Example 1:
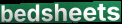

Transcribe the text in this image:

bedsheets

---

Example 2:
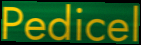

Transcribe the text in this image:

Pedicel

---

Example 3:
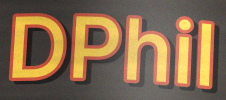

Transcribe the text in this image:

DPhil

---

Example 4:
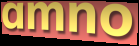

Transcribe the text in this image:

amno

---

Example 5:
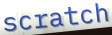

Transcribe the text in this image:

scratch